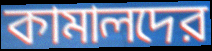
কামালদের